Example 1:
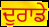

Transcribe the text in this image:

ਦੁਰਾਡੇ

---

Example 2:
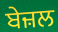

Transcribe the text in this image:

ਬੇਜ਼ਲ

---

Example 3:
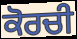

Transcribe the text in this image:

ਕੋਰਚੀ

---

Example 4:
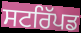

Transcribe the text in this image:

ਸਟਰਿੱਪਡ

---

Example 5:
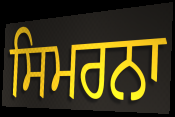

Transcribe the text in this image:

ਸਿਮਰਨਾ